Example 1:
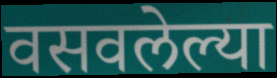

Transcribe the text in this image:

वसवलेल्या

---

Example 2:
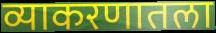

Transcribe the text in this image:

व्याकरणातला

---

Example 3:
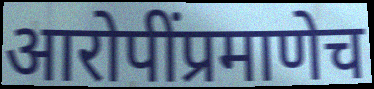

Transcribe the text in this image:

आरोपींप्रमाणेच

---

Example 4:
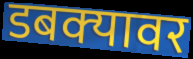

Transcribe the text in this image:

डबक्यावर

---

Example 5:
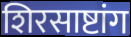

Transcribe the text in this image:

शिरसाष्टांग